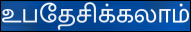
உபதேசிக்கலாம்